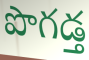
పొగడ్త